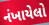
નંખાયેલો